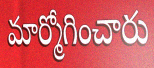
మార్మోగించారు